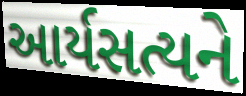
આર્યસત્યને